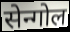
सेन्गोल